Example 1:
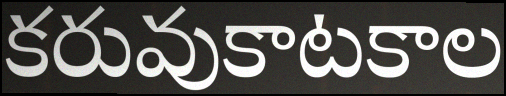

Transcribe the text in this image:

కరువుకాటకాల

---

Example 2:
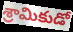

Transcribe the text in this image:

శ్రామికుడో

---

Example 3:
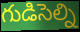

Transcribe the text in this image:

గుడిసెల్ని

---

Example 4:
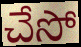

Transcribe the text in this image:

చేసో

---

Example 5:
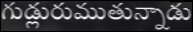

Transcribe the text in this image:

గుడ్లురుముతున్నాడు